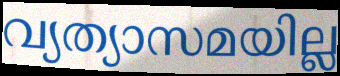
വ്യത്യാസമയില്ല